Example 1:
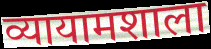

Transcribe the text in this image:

व्यायामशाला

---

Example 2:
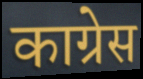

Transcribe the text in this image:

काग्रेस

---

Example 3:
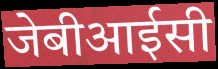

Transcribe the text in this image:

जेबीआईसी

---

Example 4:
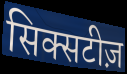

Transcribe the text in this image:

सिक्सटीज़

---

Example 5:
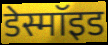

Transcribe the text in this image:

डेस्मॉइड